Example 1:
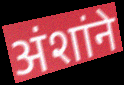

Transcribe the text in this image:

अंशांने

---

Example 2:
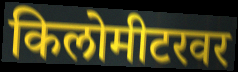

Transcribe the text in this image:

किलोमीटरवर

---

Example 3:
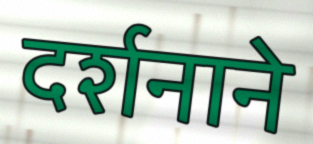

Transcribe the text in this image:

दर्शनाने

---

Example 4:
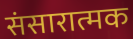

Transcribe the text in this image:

संसारात्मक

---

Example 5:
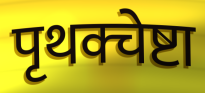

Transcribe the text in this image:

पृथक्चेष्टा